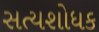
સત્યશોધક